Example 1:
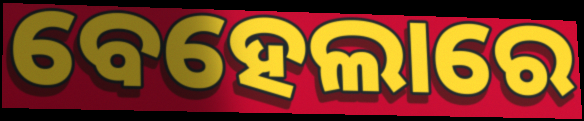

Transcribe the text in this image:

ବେହେଲାରେ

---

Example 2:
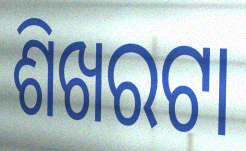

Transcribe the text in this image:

ଶିଖରଟା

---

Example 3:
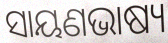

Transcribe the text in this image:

ସାୟଣଭାଷ୍ୟ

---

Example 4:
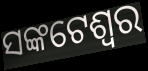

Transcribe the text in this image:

ସଙ୍କଟେଶ୍ୱର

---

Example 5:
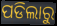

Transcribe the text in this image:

ପଡିଲାରୁ